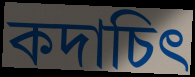
কদাচিৎ